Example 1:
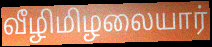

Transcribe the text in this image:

வீழிமிழலையார்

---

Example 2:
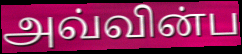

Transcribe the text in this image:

அவ்வின்ப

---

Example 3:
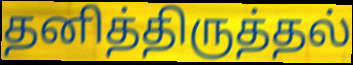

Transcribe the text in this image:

தனித்திருத்தல்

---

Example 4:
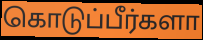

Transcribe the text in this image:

கொடுப்பீர்களா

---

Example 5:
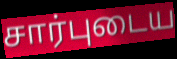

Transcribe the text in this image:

சார்புடைய